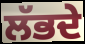
ਲੱਭਦੇ